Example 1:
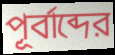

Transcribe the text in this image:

পূর্বাব্দের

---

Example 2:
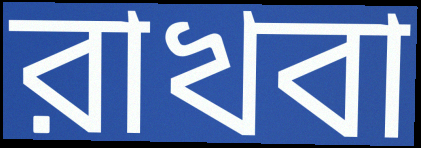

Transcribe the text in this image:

রাখবা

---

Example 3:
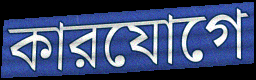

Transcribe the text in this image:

কারযোগে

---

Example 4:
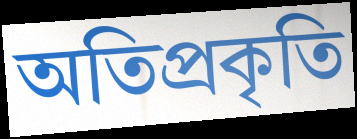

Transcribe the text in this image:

অতিপ্রকৃতি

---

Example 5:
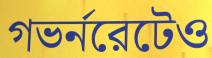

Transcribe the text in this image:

গভর্নরেটেও